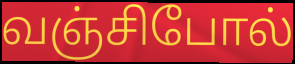
வஞ்சிபோல்